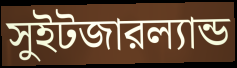
সুইটজারল্যান্ড